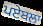
ਪਏਬਲਾ